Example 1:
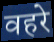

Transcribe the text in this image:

वहरे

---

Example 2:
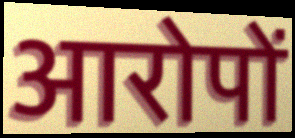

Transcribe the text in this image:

आरोपों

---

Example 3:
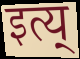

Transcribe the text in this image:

इत्य्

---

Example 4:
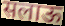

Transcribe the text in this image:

सलाऊ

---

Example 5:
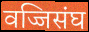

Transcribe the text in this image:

वज्जिसंघ